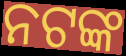
ନଟଙ୍କ